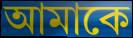
আমাকে